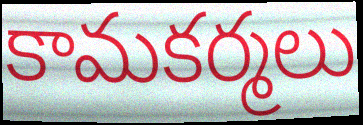
కామకర్మలు